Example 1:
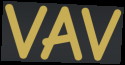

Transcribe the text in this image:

VAV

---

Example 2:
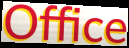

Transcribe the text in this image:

Office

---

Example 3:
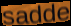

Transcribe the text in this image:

sadde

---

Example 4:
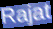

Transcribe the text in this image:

Rajat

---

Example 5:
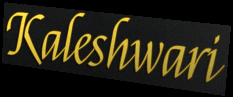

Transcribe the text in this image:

Kaleshwari